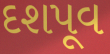
દશપૂવ